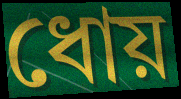
ধোয়